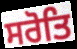
ਸਰੋਤਿ